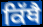
ਕਿੱਥੈ